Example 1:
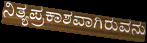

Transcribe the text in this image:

ನಿತ್ಯಪ್ರಕಾಶವಾಗಿರುವನು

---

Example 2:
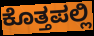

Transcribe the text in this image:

ಕೊತ್ತಪಲ್ಲಿ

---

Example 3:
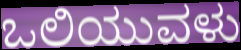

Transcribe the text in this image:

ಒಲಿಯುವಳು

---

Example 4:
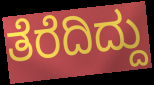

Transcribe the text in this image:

ತೆರೆದಿದ್ದು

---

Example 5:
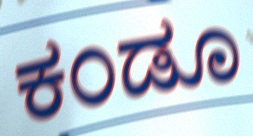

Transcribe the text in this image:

ಕಂಡೂ